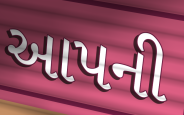
આપની